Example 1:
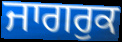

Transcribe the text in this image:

ਜਾਗਰੁਕ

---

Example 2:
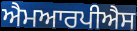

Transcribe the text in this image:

ਐਮਆਰਪੀਐਸ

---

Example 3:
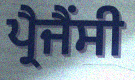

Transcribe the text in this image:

ਪ੍ਰੈਜੈਂਸੀ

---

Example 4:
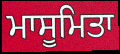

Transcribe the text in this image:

ਮਾਸੂਮਿਤਾ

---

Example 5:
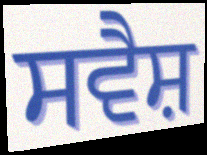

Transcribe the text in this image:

ਸਵੈਸ਼